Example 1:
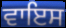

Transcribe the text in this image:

ਵਾਇਸ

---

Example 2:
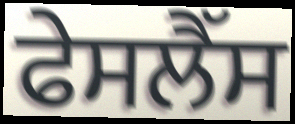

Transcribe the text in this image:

ਫੇਸਲੈੱਸ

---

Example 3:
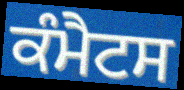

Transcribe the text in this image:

ਕੰਮੈਟਸ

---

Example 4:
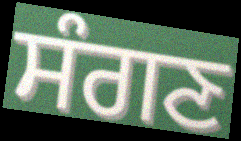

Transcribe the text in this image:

ਸੰਗਣ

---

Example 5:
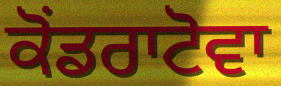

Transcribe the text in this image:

ਕੋਂਡਰਾਟੋਵਾ